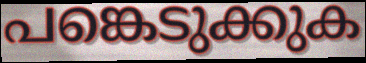
പങ്കെടുക്കുക